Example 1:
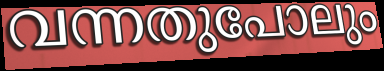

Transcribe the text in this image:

വന്നതുപോലും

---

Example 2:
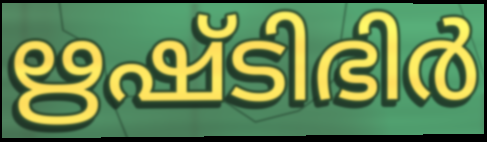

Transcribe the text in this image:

ഋഷ്ടിഭിർ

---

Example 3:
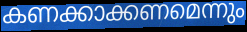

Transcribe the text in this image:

കണക്കാക്കണമെന്നും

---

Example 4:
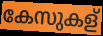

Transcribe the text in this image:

കേസുകള്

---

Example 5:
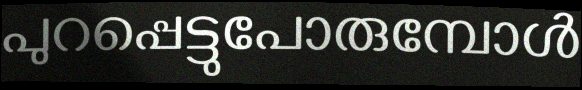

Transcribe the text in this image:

പുറപ്പെട്ടുപോരുമ്പോൾ